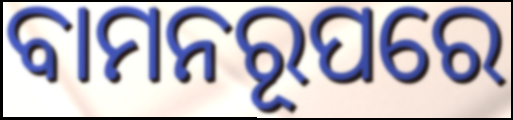
ବାମନରୂପରେ